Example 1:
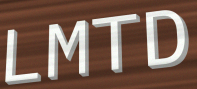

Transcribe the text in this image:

LMTD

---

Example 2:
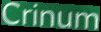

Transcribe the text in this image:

Crinum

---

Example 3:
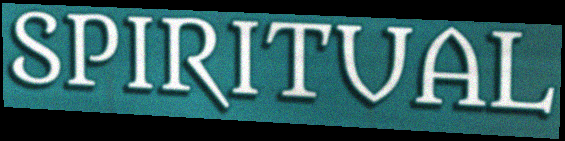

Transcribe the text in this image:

SPIRITUAL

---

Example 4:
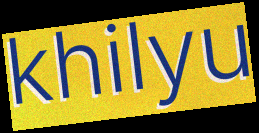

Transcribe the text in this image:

khilyu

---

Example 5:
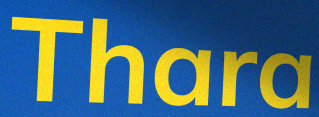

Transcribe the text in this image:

Thara